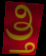
ತ್ತಿ